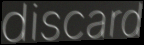
discard